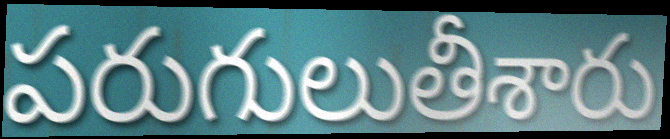
పరుగులుతీశారు